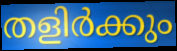
തളിർക്കും